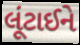
લૂંટાઈને